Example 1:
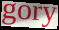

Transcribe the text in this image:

gory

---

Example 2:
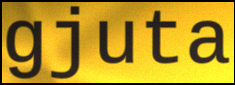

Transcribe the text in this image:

gjuta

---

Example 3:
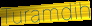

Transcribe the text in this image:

Turamdih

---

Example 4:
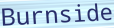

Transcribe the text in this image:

Burnside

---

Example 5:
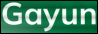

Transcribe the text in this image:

Gayun